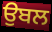
ਉਬਲ